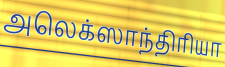
அலெக்ஸாந்திரியா